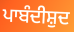
ਪਾਬੰਦੀਸ਼ੁਦ